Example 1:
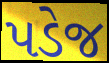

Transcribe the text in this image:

પડેજ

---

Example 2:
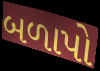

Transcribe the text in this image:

બળાપો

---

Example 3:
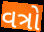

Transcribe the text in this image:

વત્રો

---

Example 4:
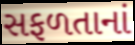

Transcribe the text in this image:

સફળતાનાં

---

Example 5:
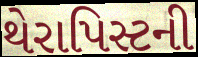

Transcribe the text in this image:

થેરાપિસ્ટની